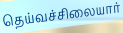
தெய்வச்சிலையார்